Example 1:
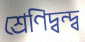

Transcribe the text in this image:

শ্রেণিদ্বন্দ্ব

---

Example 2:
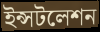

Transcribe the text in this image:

ইন্সটলেশন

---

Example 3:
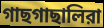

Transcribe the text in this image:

গাছগাছালিরা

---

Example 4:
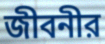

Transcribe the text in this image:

জীবনীর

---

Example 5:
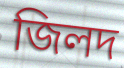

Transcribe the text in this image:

জিলদ